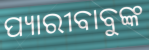
ପ୍ୟାରୀବାବୁଙ୍କ